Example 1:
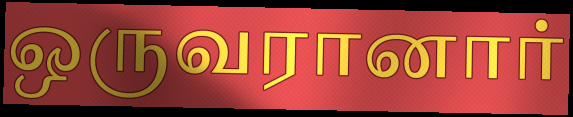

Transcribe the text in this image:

ஒருவரானார்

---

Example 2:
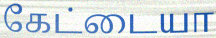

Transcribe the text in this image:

கேட்டையா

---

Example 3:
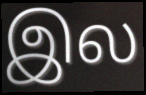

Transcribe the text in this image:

இல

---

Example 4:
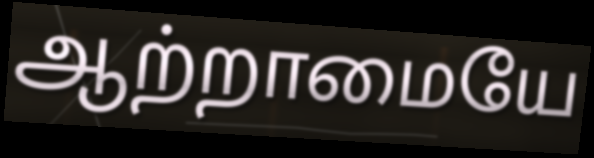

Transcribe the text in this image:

ஆற்றாமையே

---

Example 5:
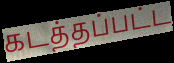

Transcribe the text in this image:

கடத்தப்பட்ட